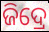
ଜିଦ୍ରେ